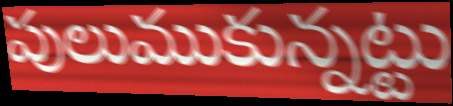
పులుముకున్నట్టు